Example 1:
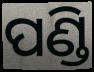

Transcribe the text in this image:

ପଣ୍ଡି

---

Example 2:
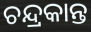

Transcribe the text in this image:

ଚନ୍ଦ୍ରକାନ୍ତ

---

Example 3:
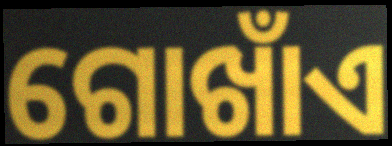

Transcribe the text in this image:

ଗୋଖାଁଏ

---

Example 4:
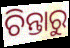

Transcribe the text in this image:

ଚିନ୍ତାରୁ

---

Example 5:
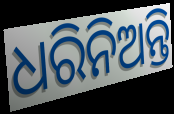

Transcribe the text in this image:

ଧରିନିଅନ୍ତି